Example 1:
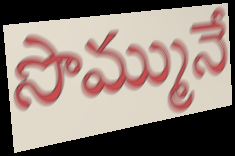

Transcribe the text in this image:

సొమ్మునే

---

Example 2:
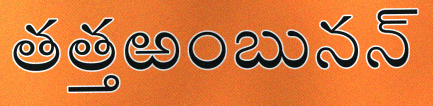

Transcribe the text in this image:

తత్తఱంబునన్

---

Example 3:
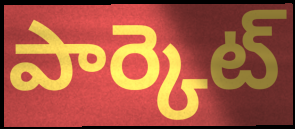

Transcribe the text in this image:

పార్కెట్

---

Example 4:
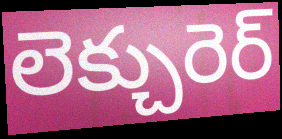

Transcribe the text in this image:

లెక్చురెర్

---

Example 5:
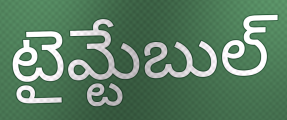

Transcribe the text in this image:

టైమ్టేబుల్